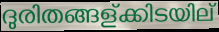
ദുരിതങ്ങള്ക്കിടയില്